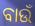
ବାଉଁ